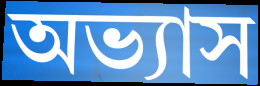
অভ্যাস